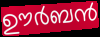
ഊർബൻ